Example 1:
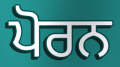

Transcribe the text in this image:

ਪੋਰਨ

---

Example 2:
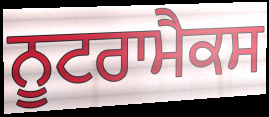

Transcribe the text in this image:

ਨੂਟਰਾਮੈਕਸ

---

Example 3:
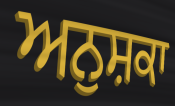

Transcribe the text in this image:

ਅਨੁਸ਼ਕਾ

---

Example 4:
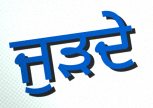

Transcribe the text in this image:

ਜੁੜਦੇ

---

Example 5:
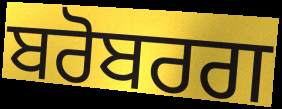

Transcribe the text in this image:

ਬਰੋਬਰਗ